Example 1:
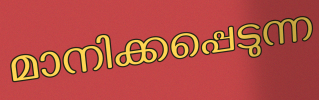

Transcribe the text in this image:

മാനിക്കപ്പെടുന്ന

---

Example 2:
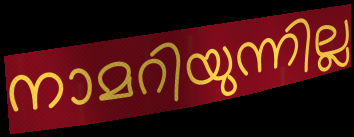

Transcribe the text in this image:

നാമറിയുന്നില്ല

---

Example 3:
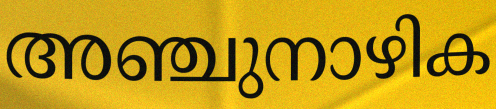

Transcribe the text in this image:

അഞ്ചുനാഴിക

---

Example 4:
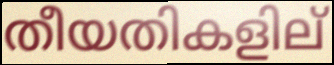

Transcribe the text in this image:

തീയതികളില്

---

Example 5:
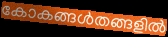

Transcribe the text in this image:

കോകങ്ങൾതങ്ങളിൽ